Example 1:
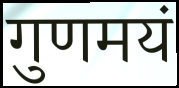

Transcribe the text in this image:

गुणमयं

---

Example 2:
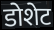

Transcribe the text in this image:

डोशेट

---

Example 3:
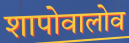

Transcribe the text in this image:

शापोवालोव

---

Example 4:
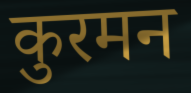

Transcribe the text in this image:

कुरमन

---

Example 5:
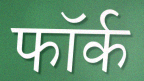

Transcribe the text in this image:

फॉर्क